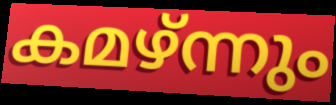
കമഴ്ന്നും